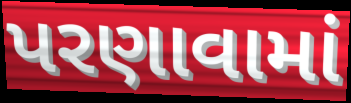
પરણાવામાં